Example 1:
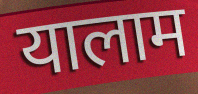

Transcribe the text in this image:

यालाम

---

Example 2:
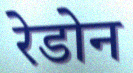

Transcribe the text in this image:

रेडोन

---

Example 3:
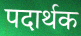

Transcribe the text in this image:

पदार्थक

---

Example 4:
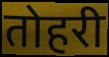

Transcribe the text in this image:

तोहरी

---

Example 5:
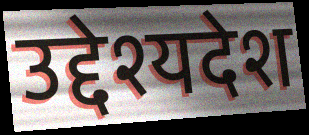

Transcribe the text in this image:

उद्देश्यदेश